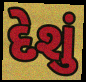
દેશું